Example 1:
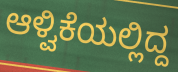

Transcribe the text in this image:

ಆಳ್ವಿಕೆಯಲ್ಲಿದ್ದ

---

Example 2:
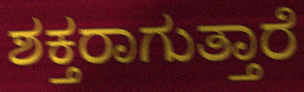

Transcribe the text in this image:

ಶಕ್ತರಾಗುತ್ತಾರೆ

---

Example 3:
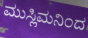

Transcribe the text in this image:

ಮುಸ್ಲಿಮನಿಂದ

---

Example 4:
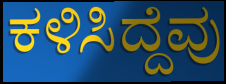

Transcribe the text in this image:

ಕಳಿಸಿದ್ದೆವು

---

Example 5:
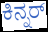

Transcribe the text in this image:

ಕಿನ್ನರ್